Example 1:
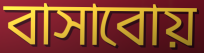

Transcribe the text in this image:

বাসাবোয়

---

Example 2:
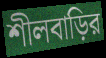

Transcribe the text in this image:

শীলবাড়ির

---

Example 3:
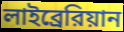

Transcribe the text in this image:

লাইব্রেরিয়ান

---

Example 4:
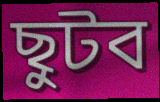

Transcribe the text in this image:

ছুটব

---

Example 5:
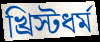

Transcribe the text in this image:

খ্রিস্টধর্ম